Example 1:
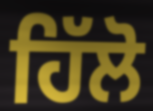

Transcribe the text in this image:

ਹਿੱਲੋ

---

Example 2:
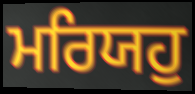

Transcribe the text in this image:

ਮਰਿਯਹੁ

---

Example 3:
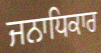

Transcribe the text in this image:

ਜਨਾਧਿਕਾਰ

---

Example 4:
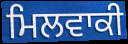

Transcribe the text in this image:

ਮਿਲਵਾਕੀ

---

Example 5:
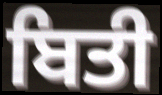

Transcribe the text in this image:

ਬਿਤੀ